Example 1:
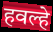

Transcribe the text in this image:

हवल्हे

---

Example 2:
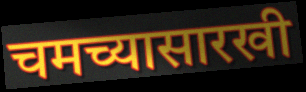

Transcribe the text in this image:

चमच्यासारखी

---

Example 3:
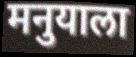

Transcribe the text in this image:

मनुयाला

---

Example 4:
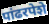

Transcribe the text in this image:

पांढरपेशे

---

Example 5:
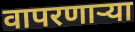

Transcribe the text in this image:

वापरणार्‍या